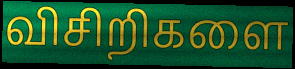
விசிறிகளை